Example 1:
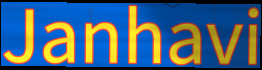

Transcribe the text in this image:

Janhavi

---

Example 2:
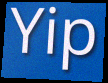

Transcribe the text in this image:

Yip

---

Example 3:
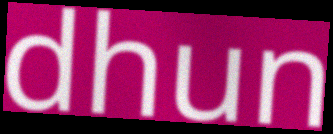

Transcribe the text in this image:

dhun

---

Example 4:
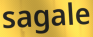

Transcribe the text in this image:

sagale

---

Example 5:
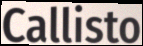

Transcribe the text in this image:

Callisto